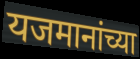
यजमानांच्या